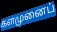
களமுனைப்